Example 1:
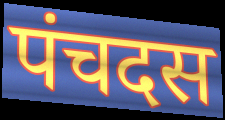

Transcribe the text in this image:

पंचदस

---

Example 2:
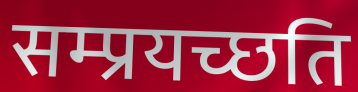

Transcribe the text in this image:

सम्प्रयच्छति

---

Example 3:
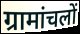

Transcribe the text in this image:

ग्रामांचलों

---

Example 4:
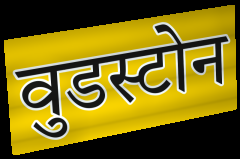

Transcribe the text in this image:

वुडस्टोन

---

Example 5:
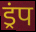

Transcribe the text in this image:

ड्रंप